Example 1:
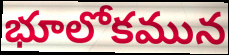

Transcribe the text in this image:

భూలోకమున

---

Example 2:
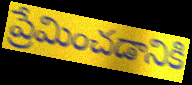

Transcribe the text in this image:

ప్రేమించడానికి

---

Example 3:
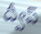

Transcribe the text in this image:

ద్వీప్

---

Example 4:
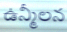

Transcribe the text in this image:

ఉన్మీలన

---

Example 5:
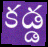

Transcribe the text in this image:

కడ్డ